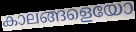
കാലങ്ങളെയോ